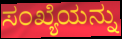
ಸಂಖ್ಯೆಯನ್ನು